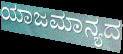
ಯಾಜಮಾನ್ಯದ